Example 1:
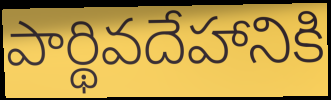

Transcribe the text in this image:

పార్థివదేహానికి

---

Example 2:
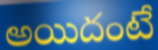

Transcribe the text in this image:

అయిదంటే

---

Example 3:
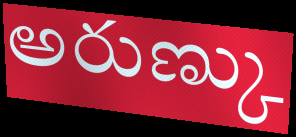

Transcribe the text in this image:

అరుణ్కు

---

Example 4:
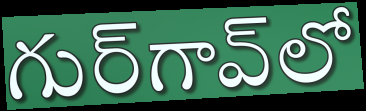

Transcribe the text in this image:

గుర్‌గావ్‌లో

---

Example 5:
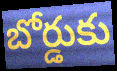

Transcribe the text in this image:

బోర్డుకు